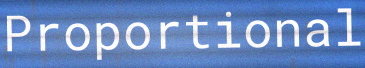
Proportional